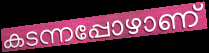
കടന്നപ്പോഴാണ്